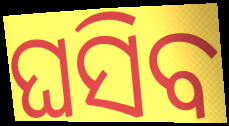
ଘସିବ